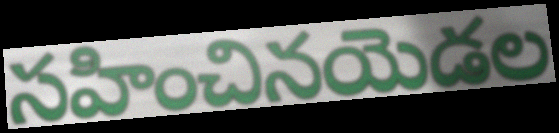
సహించినయెడల